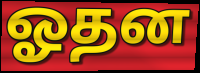
ஓதன